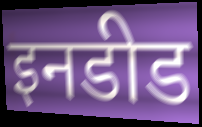
इनडीड